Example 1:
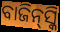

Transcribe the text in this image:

ବାଜିନ୍‌ସ୍କି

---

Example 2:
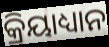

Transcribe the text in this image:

କ୍ରିୟାଧ୍ୟାନ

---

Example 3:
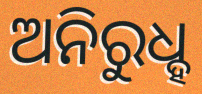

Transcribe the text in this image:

ଅନିରୁଧ୍ହ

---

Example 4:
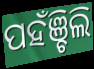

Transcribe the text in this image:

ପହଁଞ୍ଚିଲି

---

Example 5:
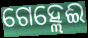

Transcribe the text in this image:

ଗେହ୍ଲେଈ